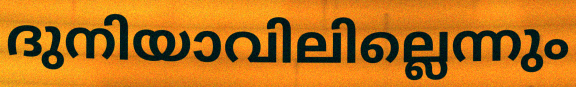
ദുനിയാവിലില്ലെന്നും